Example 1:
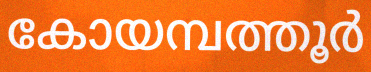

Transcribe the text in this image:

കോയമ്പത്തൂർ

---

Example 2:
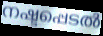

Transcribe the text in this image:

നഷ്ടപ്പെടൽ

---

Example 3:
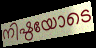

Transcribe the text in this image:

നിഷ്ഠയോടെ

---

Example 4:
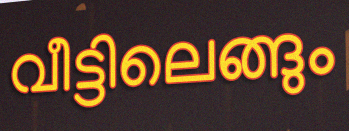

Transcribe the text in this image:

വീട്ടിലെങ്ങും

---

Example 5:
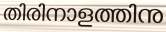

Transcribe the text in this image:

തിരിനാളത്തിനു